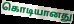
கொடியானது